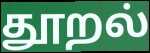
தூறல்